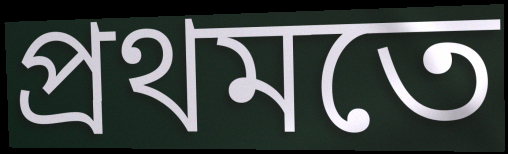
প্ৰথমতে